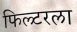
फिल्टरला